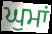
ਘੁਮਾਂ